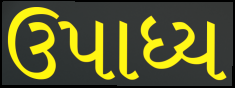
ઉપાધ્ય